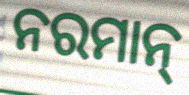
ନରମାନ୍